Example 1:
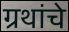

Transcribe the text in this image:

ग्रथांचे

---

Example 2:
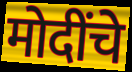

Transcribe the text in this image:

मोदींचे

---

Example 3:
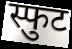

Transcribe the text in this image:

स्फुट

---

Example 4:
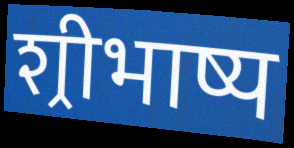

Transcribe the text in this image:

श्रीभाष्य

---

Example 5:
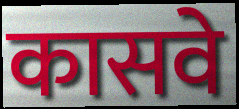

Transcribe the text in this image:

कासवे